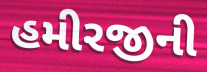
હમીરજીની